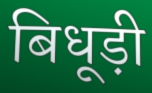
बिधूड़ी